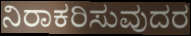
ನಿರಾಕರಿಸುವುದರ